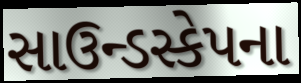
સાઉન્ડસ્કેપના